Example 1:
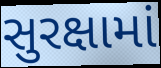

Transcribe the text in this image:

સુરક્ષામાં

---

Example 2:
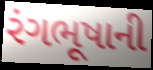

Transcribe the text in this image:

રંગભૂષાની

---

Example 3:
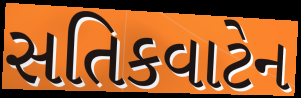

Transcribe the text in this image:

સતિકવાટેન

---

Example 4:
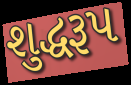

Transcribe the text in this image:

શુદ્ધરૂપ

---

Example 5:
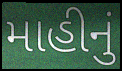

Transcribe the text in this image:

માહીનું